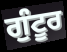
ਗੁੰਟੂਰ